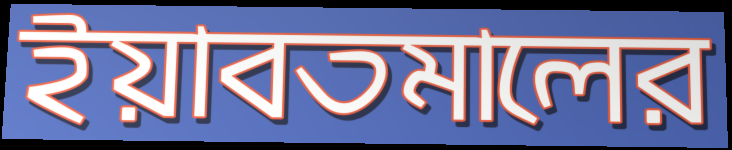
ইয়াবতমালের